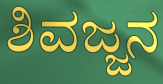
ಶಿವಜ್ಜನ